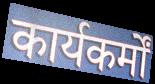
कार्यकर्मों